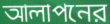
আলাপনের